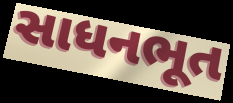
સાધનભૂત